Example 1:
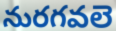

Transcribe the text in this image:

నురగవలె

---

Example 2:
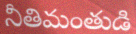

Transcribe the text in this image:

నీతిమంతుడి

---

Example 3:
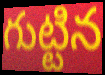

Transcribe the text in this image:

గుట్టిన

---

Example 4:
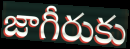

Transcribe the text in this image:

జాగీరుకు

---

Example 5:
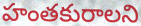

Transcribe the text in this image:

హంతకురాలని